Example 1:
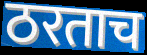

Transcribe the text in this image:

ठरताच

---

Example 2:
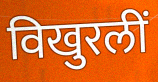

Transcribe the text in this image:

विखुरलीं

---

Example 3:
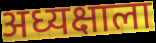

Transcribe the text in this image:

अध्यक्षाला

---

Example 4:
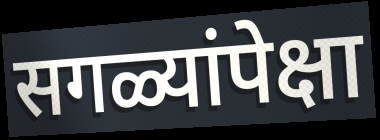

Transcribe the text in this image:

सगळ्यांपेक्षा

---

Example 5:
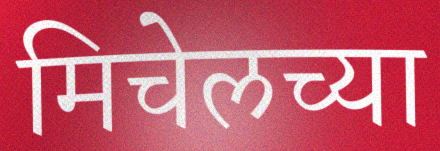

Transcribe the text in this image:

मिचेलच्या